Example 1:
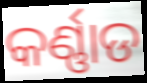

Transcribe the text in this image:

କର୍ଣ୍ଣାଡ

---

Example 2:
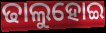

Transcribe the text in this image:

ଢାଲୁହୋଇ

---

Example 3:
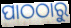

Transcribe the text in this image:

ପାଠଠାରୁ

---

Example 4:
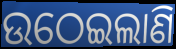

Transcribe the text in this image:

ଉଠେଇଲାଣି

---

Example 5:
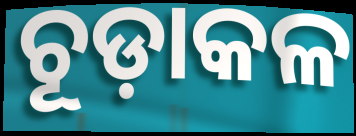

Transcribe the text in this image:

ଚୂଡ଼ାକଳ